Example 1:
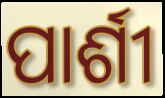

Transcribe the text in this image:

ପାର୍ଶୀ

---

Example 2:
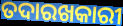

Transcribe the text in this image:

ତଦାରଖକାରୀ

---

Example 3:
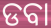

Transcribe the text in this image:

ଡବା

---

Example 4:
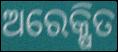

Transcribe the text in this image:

ଅରେକ୍ଷିତ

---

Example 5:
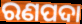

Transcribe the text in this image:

ରଣପଦା